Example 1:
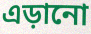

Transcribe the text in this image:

এড়ানো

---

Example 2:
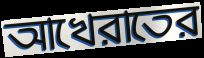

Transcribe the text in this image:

আখেরাতের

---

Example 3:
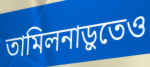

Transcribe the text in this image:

তামিলনাড়ুতেও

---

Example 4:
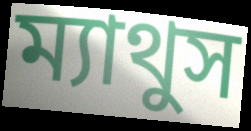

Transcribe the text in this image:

ম্যাথুস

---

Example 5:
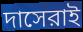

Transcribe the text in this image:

দাসেরাই